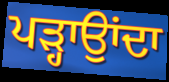
ਪੜ੍ਹਾਉਾਂਦਾ